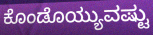
ಕೊಂಡೊಯ್ಯುವಷ್ಟು